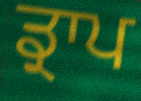
ਡ੍ਰਾਪ